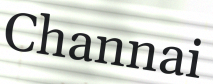
Channai